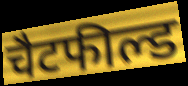
चैटफील्ड